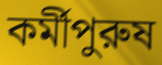
কর্মীপুরুষ